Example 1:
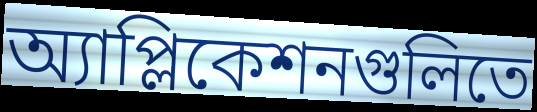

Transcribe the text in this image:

অ্যাপ্লিকেশনগুলিতে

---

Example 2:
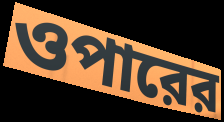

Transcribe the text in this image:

ওপারের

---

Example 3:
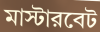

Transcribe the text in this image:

মাস্টারবেট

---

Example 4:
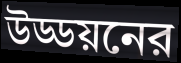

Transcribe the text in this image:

উড্ডয়নের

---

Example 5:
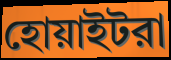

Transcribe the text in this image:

হোয়াইটরা